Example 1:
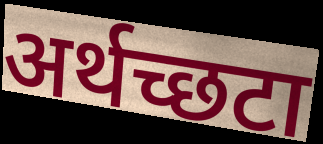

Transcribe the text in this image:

अर्थच्छटा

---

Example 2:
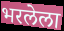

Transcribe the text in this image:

भरलेला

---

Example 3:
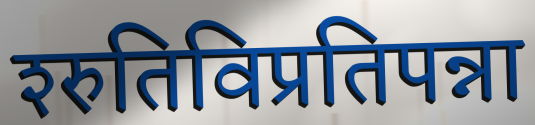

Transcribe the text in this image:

श्रुतिविप्रतिपन्ना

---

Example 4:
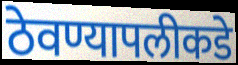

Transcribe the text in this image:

ठेवण्यापलीकडे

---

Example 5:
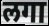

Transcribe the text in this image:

लगा